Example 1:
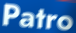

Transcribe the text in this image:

Patro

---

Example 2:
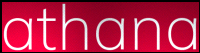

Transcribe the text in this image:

athana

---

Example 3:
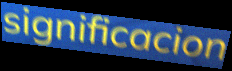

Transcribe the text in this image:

significacion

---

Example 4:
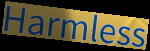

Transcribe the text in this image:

Harmless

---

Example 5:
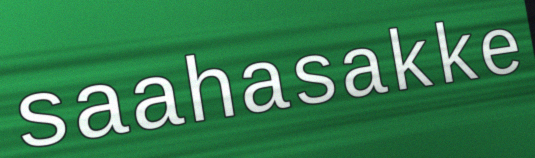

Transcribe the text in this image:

saahasakke